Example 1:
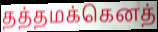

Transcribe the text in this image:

தத்தமக்கெனத்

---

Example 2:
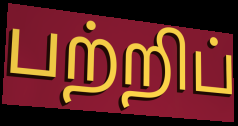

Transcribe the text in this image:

பற்றிப்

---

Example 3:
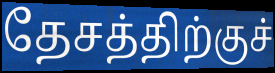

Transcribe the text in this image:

தேசத்திற்குச்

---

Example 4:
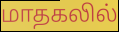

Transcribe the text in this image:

மாதகலில்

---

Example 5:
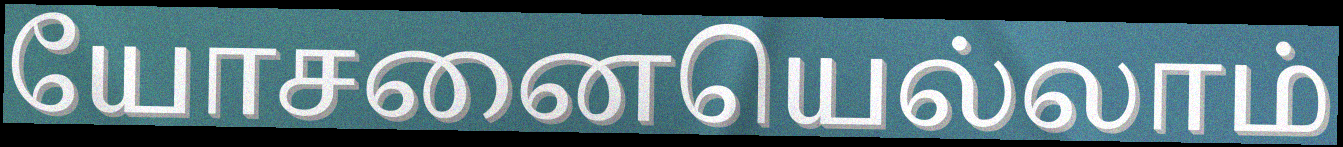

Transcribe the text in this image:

யோசனையெல்லாம்